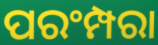
ପରଂମ୍ପରା